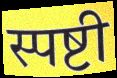
स्पष्टी